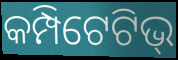
କମ୍ପିଟେଟିଭ୍